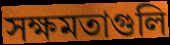
সক্ষমতাগুলি